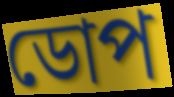
ডোপ